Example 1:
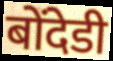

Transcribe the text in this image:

बोंदेडी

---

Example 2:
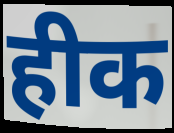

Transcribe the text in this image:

हीक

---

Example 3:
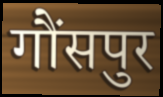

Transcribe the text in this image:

गौंसपुर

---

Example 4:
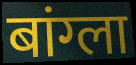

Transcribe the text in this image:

बांग्‍ला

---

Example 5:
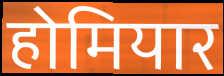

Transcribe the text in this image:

होमियार